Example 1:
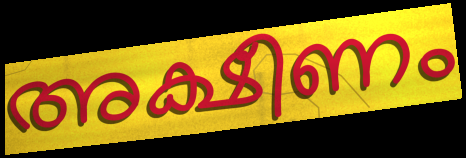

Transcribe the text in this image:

അക്ഷീണം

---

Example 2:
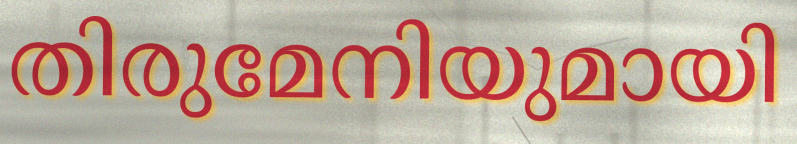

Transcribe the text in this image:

തിരുമേനിയുമായി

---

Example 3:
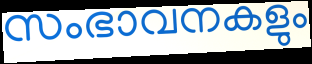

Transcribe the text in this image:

സംഭാവനകളും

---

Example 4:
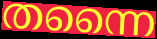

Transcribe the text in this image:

തന്നൈ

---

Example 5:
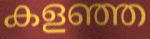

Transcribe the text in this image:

കളഞ്ഞ